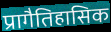
प्रागैतिहासिक